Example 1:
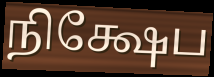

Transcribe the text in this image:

நிக்ஷேப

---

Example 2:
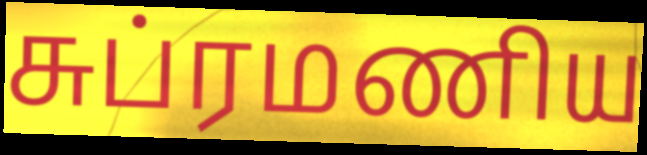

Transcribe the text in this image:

சுப்ரமணிய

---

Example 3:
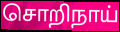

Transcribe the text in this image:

சொறிநாய்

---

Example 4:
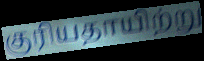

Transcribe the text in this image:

குரியதாயிற்று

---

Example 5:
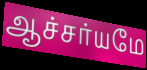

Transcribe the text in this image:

ஆச்சர்யமே